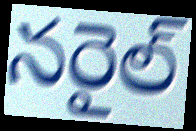
నరైల్